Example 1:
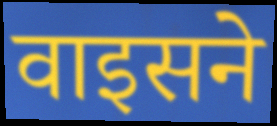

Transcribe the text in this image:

वाइसने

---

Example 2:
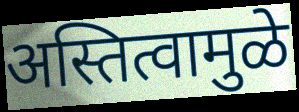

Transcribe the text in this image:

अस्तित्वामुळे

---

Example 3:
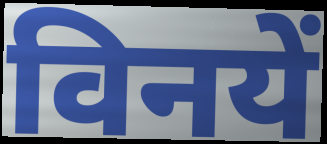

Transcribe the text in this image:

विनयें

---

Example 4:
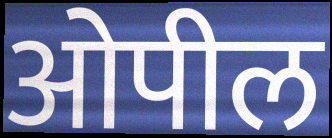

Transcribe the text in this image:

ओपील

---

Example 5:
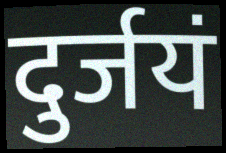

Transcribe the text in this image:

दुर्जयं